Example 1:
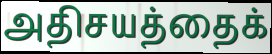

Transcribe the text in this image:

அதிசயத்தைக்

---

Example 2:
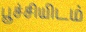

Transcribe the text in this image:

பூச்சியிடம்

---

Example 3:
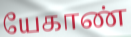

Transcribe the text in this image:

யேகாண்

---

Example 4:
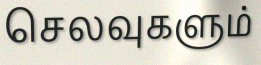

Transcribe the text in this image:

செலவுகளும்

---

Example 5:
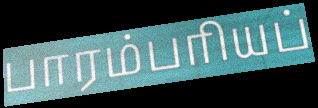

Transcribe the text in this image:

பாரம்பரியப்